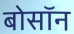
बोसॉन